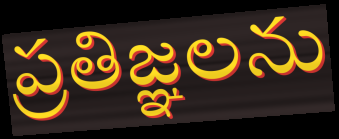
ప్రతిజ్ఞలను